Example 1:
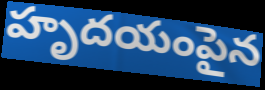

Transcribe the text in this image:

హృదయంపైన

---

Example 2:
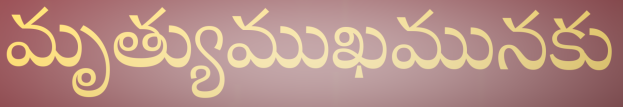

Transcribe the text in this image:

మృత్యుముఖమునకు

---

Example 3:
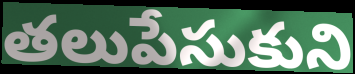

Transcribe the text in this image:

తలుపేసుకుని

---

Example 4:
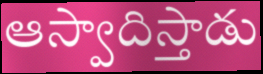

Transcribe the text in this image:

ఆస్వాదిస్తాడు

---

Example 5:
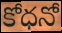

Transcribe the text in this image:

కోధనో